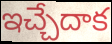
ఇచ్చేదాక